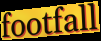
footfall